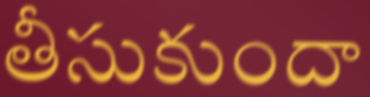
తీసుకుందా